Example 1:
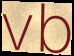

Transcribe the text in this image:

vb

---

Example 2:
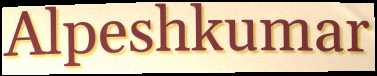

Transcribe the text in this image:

Alpeshkumar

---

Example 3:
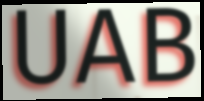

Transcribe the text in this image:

UAB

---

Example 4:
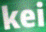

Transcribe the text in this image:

kei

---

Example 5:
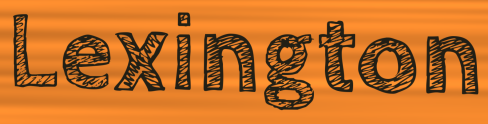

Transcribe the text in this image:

Lexington